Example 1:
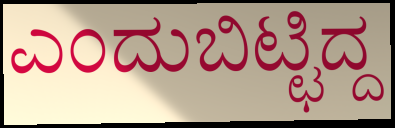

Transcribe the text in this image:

ಎಂದುಬಿಟ್ಟಿದ್ದ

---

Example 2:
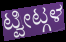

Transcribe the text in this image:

ಟ್ವೀಟ್ಗಳ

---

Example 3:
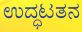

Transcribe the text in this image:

ಉದ್ಧಟತನ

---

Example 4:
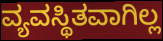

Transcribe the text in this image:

ವ್ಯವಸ್ಥಿತವಾಗಿಲ್ಲ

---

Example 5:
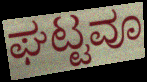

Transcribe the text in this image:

ಘಟ್ಟವೂ